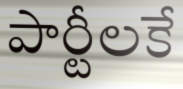
పార్టీలకే